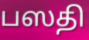
பஸதி